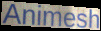
Animesh